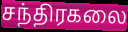
சந்திரகலை